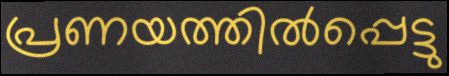
പ്രണയത്തിൽപ്പെട്ടു